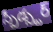
స్పీడ్స్టర్